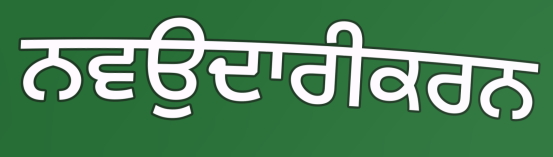
ਨਵਉਦਾਰੀਕਰਨ